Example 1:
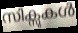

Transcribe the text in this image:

സിക്സുകൾ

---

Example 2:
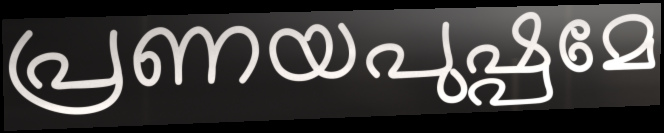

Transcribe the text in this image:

പ്രണയപുഷ്പമേ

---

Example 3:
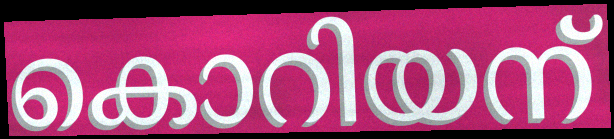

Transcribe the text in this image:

കൊറിയന്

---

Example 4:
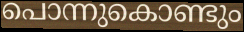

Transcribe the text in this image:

പൊന്നുകൊണ്ടും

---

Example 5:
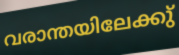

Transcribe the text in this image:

വരാന്തയിലേക്കു്